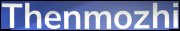
Thenmozhi